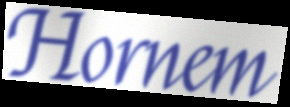
Hornem